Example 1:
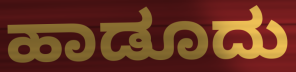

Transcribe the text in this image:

ಹಾಡೂದು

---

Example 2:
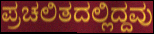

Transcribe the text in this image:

ಪ್ರಚಲಿತದಲ್ಲಿದ್ದವು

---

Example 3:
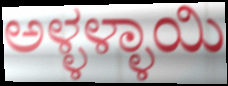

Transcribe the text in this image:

ಅಳ್ಳಳ್ಳಾಯಿ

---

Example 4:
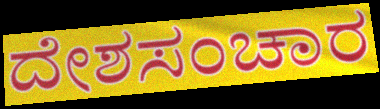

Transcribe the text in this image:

ದೇಶಸಂಚಾರ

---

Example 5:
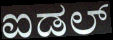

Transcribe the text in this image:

ಐಡಲ್